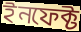
ইনফেক্ট